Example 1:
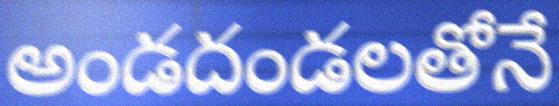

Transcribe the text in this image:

అండదండలతోనే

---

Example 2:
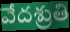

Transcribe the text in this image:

వేదశ్రుతి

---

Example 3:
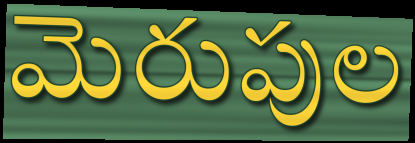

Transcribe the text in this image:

మెరుపుల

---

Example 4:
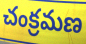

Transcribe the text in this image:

చంక్రమణ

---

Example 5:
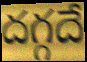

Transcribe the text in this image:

దగ్గదే